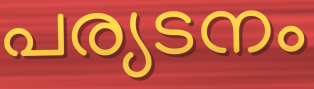
പര്യടനം